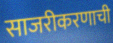
साजरीकरणाची